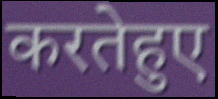
करतेहुए